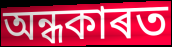
অন্ধকাৰত